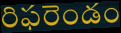
రిఫరెండం